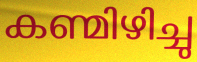
കണ്മിഴിച്ചു